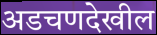
अडचणदेखील